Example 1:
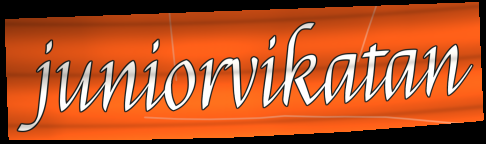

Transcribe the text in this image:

juniorvikatan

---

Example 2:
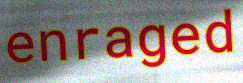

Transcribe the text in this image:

enraged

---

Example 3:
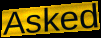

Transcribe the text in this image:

Asked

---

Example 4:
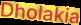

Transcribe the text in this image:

Dholakia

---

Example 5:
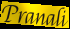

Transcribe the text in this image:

Pranali